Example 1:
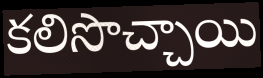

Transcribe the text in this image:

కలిసొచ్చాయి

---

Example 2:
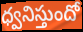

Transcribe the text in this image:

ధ్వనిస్తుందో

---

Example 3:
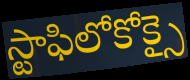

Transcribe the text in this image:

స్టాఫిలోకోక్సై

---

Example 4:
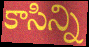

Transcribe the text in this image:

కాసిన్ని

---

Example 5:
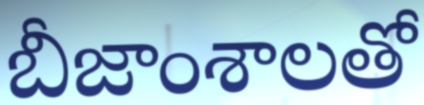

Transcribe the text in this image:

బీజాంశాలతో